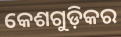
କେଶଗୁଡ଼ିକର